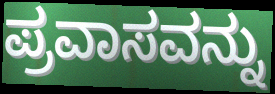
ಪ್ರವಾಸವನ್ನು